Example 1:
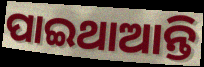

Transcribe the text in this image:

ପାଇଥାଆନ୍ତି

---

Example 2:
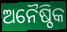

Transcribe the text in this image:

ଅନୈଷ୍ଠିକ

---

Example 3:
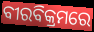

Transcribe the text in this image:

ବୀରବିକ୍ରମରେ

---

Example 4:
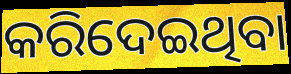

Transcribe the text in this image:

କରିଦେଇଥିବା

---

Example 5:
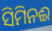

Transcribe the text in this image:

ସିମିନଈ